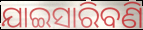
ଯାଇସାରିବଣି